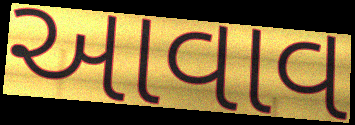
આવાવ